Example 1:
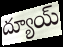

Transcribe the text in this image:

ద్యూయ్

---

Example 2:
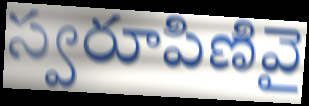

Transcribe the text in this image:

స్వరూపిణివై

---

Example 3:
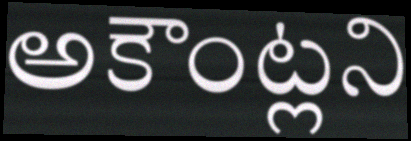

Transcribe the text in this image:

అకౌంట్లని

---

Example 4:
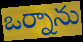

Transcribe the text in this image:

ఒర్నాను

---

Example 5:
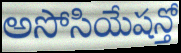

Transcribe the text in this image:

అసోసియేషన్తో